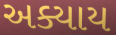
અક્યાય